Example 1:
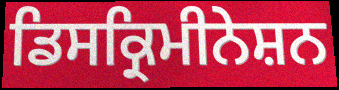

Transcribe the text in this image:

ਡਿਸਕ੍ਰਿਮੀਨੇਸ਼ਨ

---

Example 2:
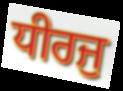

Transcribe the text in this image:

ਧੀਰਜੁ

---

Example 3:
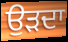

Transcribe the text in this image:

ਉੜਦਾ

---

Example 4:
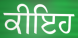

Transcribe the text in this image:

ਕੀਇਹ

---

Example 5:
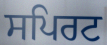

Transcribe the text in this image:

ਸਪਿਰਟ